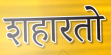
शहारतो